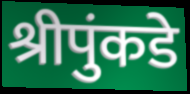
श्रीपुंकडे